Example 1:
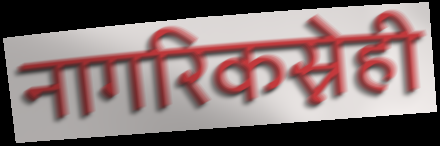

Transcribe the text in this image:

नागरिकस्नेही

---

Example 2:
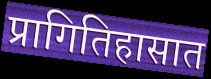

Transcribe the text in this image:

प्रागितिहासात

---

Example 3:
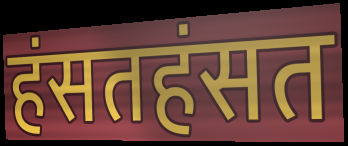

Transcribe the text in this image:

हंसतहंसत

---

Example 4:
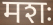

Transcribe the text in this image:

मशः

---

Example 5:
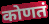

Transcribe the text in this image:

कोणतं